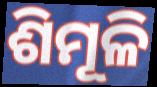
ଶିମୂଳି